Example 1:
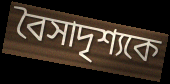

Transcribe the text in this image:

বৈসাদৃশ্যকে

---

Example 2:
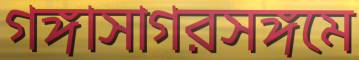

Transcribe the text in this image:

গঙ্গাসাগরসঙ্গমে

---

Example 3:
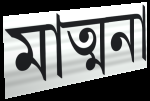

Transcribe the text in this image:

মাত্মনা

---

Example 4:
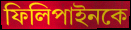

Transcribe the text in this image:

ফিলিপাইনকে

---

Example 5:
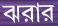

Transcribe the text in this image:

ঝরার